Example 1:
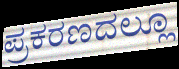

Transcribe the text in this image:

ಪ್ರಕರಣದಲ್ಲೂ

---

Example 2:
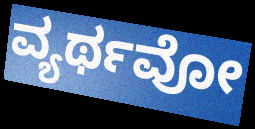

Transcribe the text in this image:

ವ್ಯರ್ಥವೋ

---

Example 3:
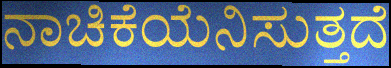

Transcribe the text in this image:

ನಾಚಿಕೆಯೆನಿಸುತ್ತದೆ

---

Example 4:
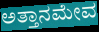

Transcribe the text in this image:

ಅತ್ತಾನಮೇವ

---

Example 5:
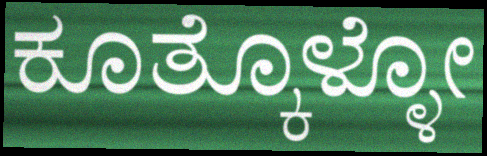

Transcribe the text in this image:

ಕೂತ್ಕೊಳ್ಳೋ